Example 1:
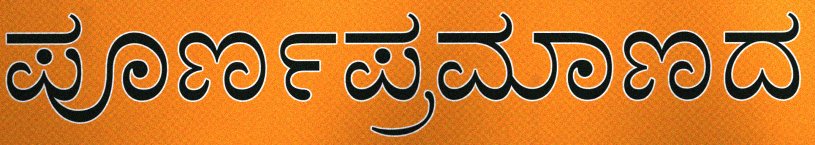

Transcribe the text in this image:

ಪೂರ್ಣಪ್ರಮಾಣದ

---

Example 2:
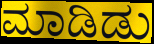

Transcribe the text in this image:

ಮಾಡಿಡು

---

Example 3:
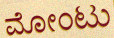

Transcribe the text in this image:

ಮೋಂಟು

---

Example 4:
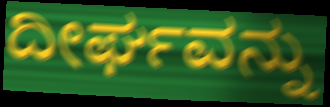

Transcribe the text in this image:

ದೀರ್ಘವನ್ನು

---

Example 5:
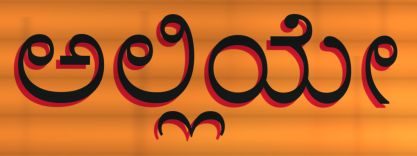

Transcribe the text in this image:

ಅಲ್ಲಿಯೇ